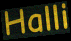
Halli